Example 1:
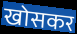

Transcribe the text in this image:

खोसकर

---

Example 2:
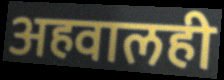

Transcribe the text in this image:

अहवालही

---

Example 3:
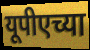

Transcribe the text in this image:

यूपीएच्या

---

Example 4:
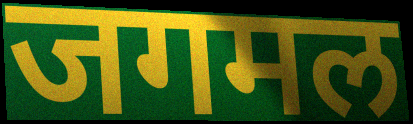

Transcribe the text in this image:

जगमल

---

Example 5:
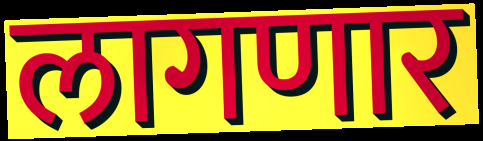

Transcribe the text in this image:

लागणार